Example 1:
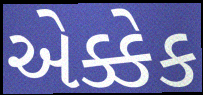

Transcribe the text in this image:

એક્કેક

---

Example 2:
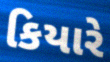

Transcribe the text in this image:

કિયારે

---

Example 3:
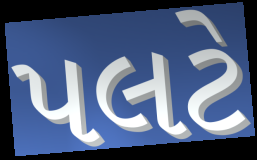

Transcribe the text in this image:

પલટે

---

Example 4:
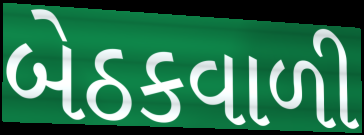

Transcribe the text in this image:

બેઠકવાળી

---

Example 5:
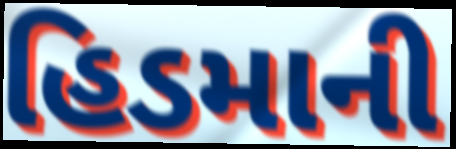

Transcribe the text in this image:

હિડમાની